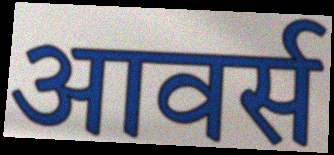
आवर्स